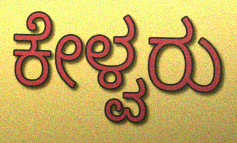
ಕೇಳ್ವರು